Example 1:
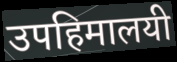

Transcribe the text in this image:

उपहिमालयी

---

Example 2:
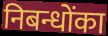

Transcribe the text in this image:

निबन्धोंका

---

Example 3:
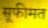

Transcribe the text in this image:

सूफीमत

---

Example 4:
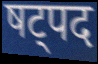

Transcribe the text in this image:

षट्पद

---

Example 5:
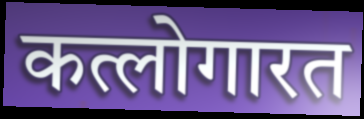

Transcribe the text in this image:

कत्लोगारत